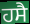
ਹਸੈ